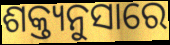
ଶକ୍ତ୍ୟନୁସାରେ